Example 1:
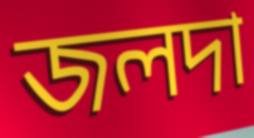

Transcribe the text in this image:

জলদা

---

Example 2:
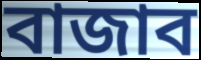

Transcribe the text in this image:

বাজাব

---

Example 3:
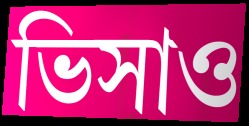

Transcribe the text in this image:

ভিসাও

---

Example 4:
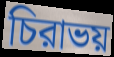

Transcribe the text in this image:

চিরাভয়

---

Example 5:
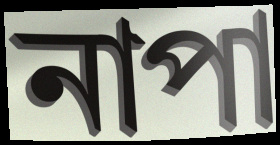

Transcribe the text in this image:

নাপা